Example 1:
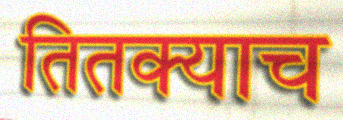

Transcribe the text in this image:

तितक्याच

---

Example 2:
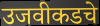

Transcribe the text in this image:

उजवीकडचे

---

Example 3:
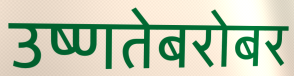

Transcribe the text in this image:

उष्णतेबरोबर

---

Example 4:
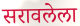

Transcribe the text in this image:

सरावलेला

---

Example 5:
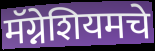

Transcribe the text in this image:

मॅग्नेशियमचे